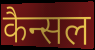
कैन्सल